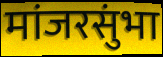
मांजरसुंभा